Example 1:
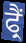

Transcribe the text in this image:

ਫ੍ਰੈਂ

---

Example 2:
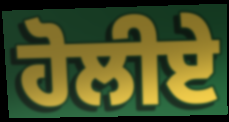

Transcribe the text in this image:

ਹੋਲੀਏ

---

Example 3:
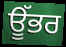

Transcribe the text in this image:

ਊੱਭਰ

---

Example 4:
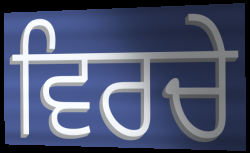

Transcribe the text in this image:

ਵਿਰਚੇ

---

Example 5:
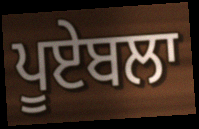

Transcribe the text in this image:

ਪੂਏਬਲਾ